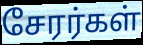
சேரர்கள்